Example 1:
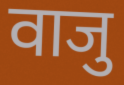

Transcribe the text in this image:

वाजु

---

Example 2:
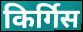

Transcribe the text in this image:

किर्गिस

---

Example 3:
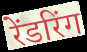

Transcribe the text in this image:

रेंडरिंग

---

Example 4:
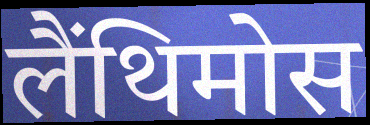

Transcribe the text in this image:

लैंथिमोस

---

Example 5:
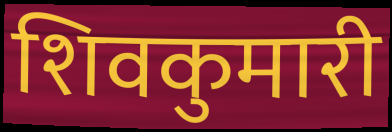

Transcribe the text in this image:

शिवकुमारी